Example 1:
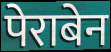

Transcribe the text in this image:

पेराबेन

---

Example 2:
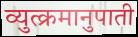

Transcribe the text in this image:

व्युत्क्रमानुपाती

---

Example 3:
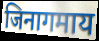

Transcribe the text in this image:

जिनागमाय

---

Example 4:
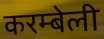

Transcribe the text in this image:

करम्बेली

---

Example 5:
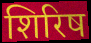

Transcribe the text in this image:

शिरिष